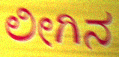
ಲೀಗಿನ